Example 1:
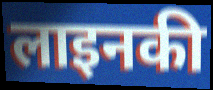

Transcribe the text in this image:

लाइनकी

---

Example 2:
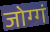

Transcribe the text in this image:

जोग्गं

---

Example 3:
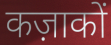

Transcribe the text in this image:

कज़ाकों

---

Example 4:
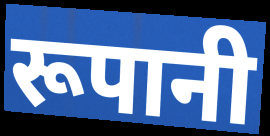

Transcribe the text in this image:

रूपानी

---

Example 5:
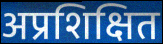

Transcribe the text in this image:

अप्रशिक्षित